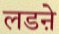
लडऩे